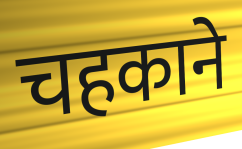
चहकाने